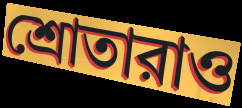
শ্রোতারাও